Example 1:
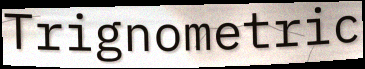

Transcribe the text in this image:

Trignometric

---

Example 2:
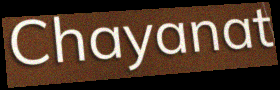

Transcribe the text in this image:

Chayanat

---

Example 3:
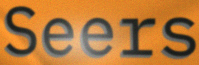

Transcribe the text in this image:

Seers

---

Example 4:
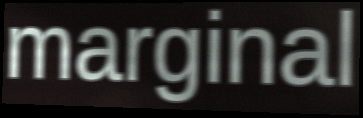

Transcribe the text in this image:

marginal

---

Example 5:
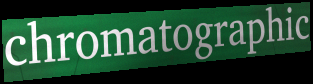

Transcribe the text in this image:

chromatographic